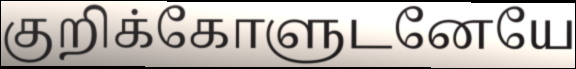
குறிக்கோளுடனேயே